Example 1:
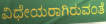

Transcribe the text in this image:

ವಿಧೇಯರಾಗಿರುವಂತೆ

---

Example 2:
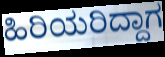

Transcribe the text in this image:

ಹಿರಿಯರಿದ್ದಾಗ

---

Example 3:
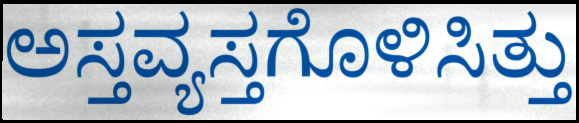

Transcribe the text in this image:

ಅಸ್ತವ್ಯಸ್ತಗೊಳಿಸಿತ್ತು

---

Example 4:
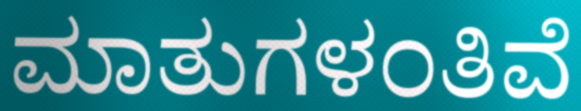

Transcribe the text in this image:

ಮಾತುಗಳಂತಿವೆ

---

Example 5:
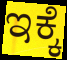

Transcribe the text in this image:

ಇಕ್ಕೆ